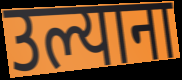
उल्याना